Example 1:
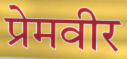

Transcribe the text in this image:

प्रेमवीर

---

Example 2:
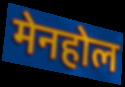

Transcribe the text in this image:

मेनहोल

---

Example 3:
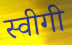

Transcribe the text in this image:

स्वीगी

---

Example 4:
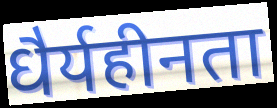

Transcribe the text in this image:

धैर्यहीनता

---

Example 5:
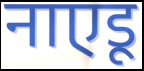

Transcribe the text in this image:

नाएडू